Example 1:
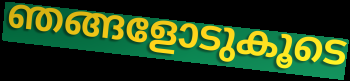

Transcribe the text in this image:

ഞങ്ങളോടുകൂടെ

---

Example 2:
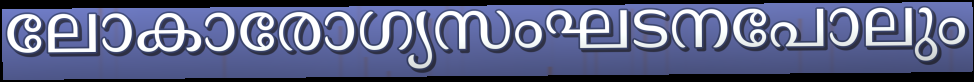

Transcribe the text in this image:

ലോകാരോഗ്യസംഘടനപോലും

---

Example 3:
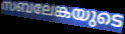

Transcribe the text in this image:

സബലേങ്കയുടെ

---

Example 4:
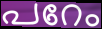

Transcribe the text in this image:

പറേം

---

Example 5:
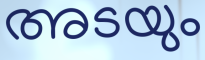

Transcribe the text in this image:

അടയും